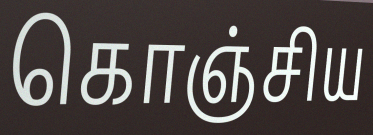
கொஞ்சிய